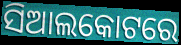
ସିଆଲକୋଟରେ